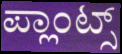
ಪ್ಲಾಂಟ್ಸ್